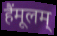
हैंमूलम्